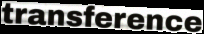
transference